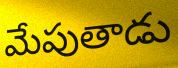
మేపుతాడు